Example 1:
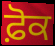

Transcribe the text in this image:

ਫ਼ੋਕ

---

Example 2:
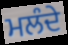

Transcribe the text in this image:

ਮਲੰਦੇ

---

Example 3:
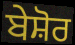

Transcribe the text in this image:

ਬੇਸ਼ੋਰ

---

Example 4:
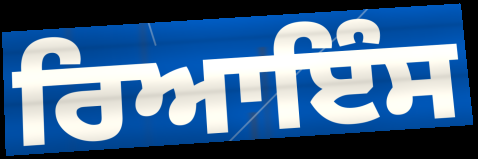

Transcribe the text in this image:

ਰਿਆਇੰਸ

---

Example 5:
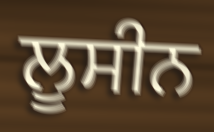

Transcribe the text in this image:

ਲੂਸੀਨ